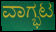
ವಾಗ್ಭಟ